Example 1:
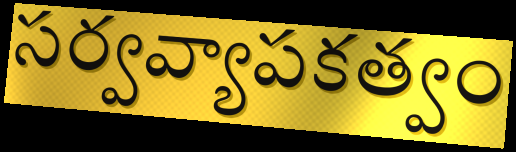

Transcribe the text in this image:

సర్వవ్యాపకత్వం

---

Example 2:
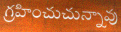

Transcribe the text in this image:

గ్రహించుచున్నావు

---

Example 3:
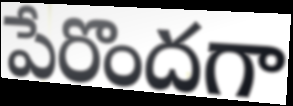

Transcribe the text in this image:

పేరొందగా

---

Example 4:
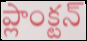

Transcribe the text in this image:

ప్లాంక్టన్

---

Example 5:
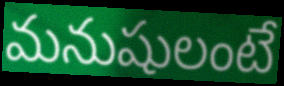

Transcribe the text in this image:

మనుషులంటే